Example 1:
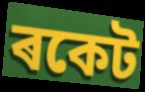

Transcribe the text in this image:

ৰকেট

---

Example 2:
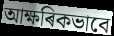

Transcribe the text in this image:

আক্ষৰিকভাবে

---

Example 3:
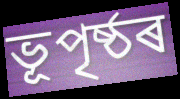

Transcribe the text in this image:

ভূপৃষ্ঠৰ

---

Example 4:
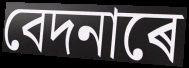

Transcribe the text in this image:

বেদনাৰে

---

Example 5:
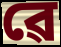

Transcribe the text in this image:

ৱে